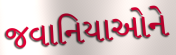
જવાનિયાઓને